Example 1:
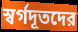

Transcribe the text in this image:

স্বর্গদূতদের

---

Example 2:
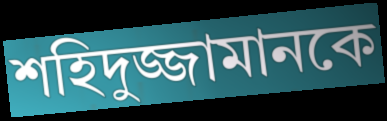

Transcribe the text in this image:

শহিদুজ্জামানকে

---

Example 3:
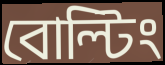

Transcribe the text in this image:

বোল্টিং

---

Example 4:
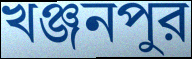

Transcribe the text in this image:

খঞ্জনপুর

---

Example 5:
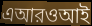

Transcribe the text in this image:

এআরওআই